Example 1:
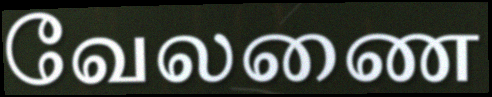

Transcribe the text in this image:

வேலணை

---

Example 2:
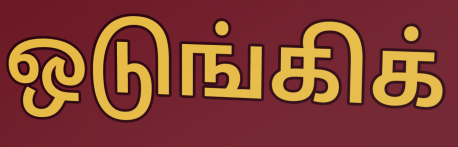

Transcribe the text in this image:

ஒடுங்கிக்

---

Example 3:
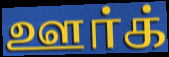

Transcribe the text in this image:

ஊர்க்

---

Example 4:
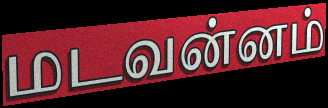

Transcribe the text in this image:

மடவன்னம்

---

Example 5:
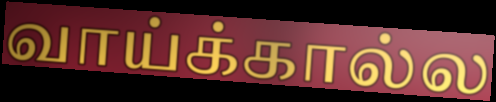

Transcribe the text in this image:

வாய்க்கால்ல